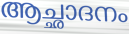
ആച്ഛാദനം